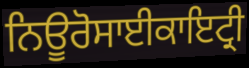
ਨਿਊਰੋਸਾਈਕਾਇਟ੍ਰੀ